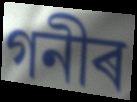
গনীৰ